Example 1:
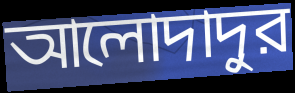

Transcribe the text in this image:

আলোদাদুর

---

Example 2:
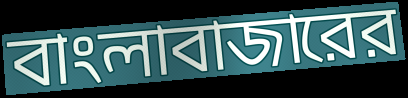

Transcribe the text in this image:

বাংলাবাজারের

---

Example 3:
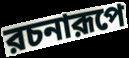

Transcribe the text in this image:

রচনারূপে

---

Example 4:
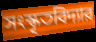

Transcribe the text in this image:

সংস্কৃতবিদ্যার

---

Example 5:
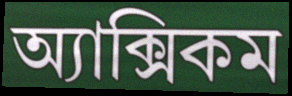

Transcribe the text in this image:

অ্যাক্সিকম